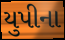
યુપીના